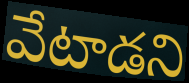
వేటాడని